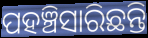
ପହଞ୍ଚିସାରିଛନ୍ତି